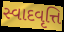
સ્વાદવૃત્તિ